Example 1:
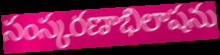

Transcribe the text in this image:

సంస్కరణాభిలాషను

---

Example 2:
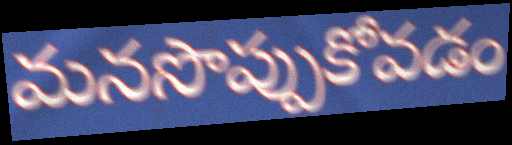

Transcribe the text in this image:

మనసొప్పుకోవడం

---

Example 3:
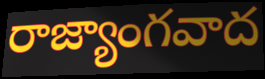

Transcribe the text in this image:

రాజ్యాంగవాద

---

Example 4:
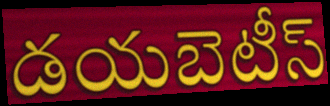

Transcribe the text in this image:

డయబెటీస్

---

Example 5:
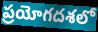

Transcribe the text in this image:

ప్రయోగదశలో